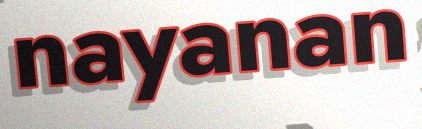
nayanan